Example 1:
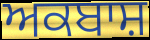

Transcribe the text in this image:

ਅਕਬਾਸ਼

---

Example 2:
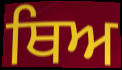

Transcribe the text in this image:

ਥਿਅ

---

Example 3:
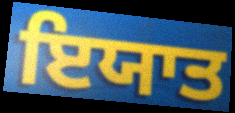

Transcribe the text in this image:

ਇਯਾਤ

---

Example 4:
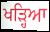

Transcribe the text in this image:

ਖੜ੍ਹਿਆ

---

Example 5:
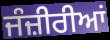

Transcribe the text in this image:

ਜੰਜ਼ੀਰੀਆਂ